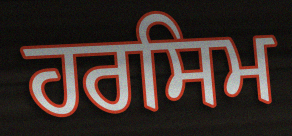
ਹਰਸਿਮ